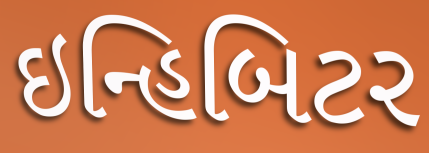
ઇન્હિબિટર